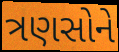
ત્રણસોને